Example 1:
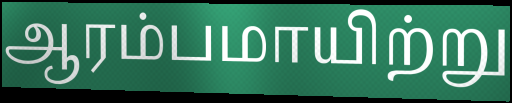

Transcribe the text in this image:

ஆரம்பமாயிற்று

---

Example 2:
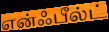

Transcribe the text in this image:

என்ஃபீல்ட்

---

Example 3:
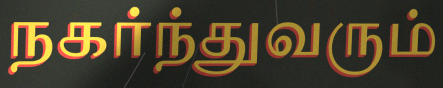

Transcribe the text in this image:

நகர்ந்துவரும்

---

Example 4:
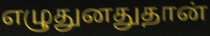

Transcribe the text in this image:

எழுதுனதுதான்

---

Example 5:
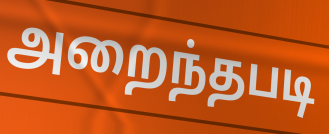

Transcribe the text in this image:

அறைந்தபடி